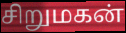
சிறுமகன்